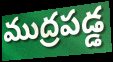
ముద్రపడ్డ